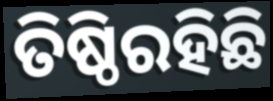
ତିଷ୍ଠିରହିଛି